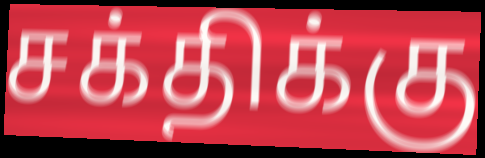
சக்திக்கு